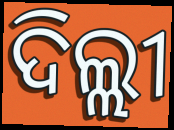
ଦିଲ୍ଲୀ